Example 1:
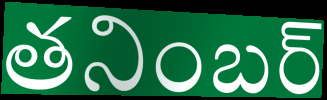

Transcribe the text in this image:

తనింబర్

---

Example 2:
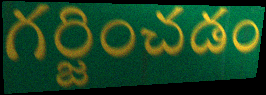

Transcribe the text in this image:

గర్జించడం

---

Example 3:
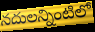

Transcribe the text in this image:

నదులన్నింటిలో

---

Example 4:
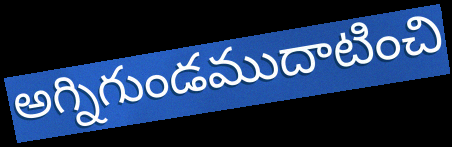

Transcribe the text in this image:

అగ్నిగుండముదాటించి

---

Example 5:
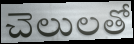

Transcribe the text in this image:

చెలులతో